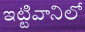
ఇట్టివానిలో